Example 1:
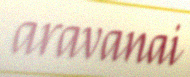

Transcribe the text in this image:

aravanai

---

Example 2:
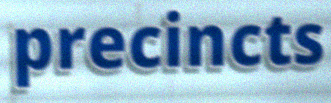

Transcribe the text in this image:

precincts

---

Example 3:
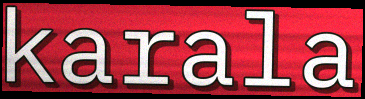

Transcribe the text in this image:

karala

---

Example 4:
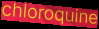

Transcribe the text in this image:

chloroquine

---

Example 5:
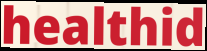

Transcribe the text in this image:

healthid